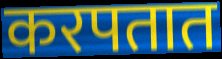
करपतात